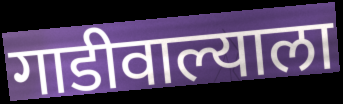
गाडीवाल्याला